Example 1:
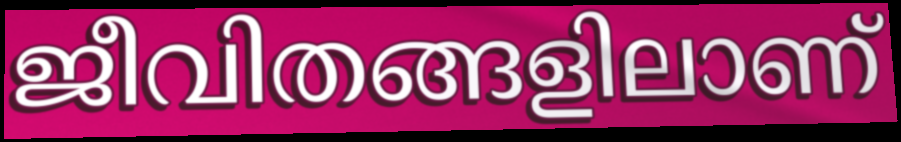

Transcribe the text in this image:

ജീവിതങ്ങളിലാണ്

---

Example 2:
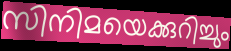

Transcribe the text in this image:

സിനിമയെക്കുറിച്ചും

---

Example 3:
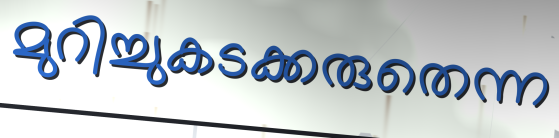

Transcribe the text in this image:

മുറിച്ചുകടക്കരുതെന്ന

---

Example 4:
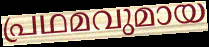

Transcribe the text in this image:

പ്രഥമവുമായ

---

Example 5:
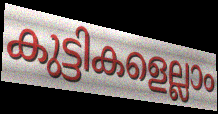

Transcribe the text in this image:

കുട്ടികളെല്ലാം